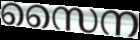
സൈന